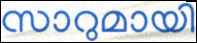
സാറുമായി